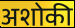
अशोकी